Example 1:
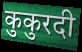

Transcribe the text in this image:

कुकुरदी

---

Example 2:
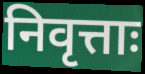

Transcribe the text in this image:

निवृत्ताः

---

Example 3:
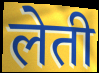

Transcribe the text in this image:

लेती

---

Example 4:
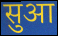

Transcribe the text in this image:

सुआ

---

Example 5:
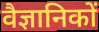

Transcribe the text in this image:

वैज्ञानिकों